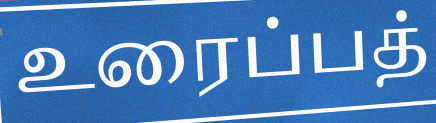
உரைப்பத்